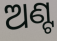
ଅଣ୍ଟ